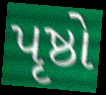
પૃષ્ઠો